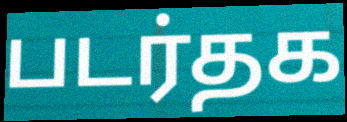
படர்தக